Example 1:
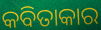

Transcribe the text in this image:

କବିତାକାର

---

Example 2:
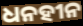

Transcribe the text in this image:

ଧନହୀନ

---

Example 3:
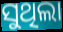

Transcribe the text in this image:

ସୁଥିଲା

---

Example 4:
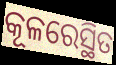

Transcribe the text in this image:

କୂଳରେସ୍ଥିତ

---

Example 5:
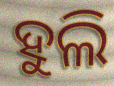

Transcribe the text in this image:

ହୁଲି